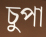
চুপা